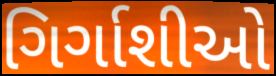
ગિર્ગાશીઓ